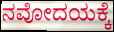
ನವೋದಯಕ್ಕೆ